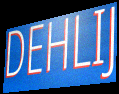
DEHLIJ